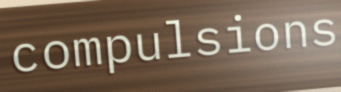
compulsions